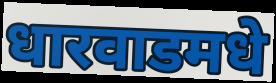
धारवाडमधे